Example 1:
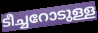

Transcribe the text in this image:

ടീച്ചറോടുള്ള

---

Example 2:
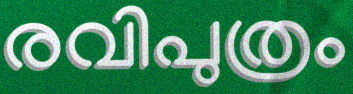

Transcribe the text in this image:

രവിപുത്രം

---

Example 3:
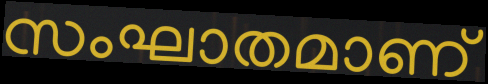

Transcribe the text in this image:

സംഘാതമാണ്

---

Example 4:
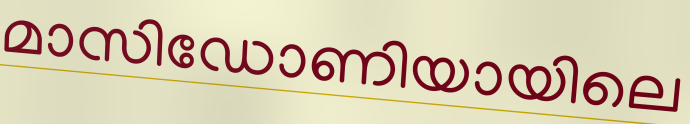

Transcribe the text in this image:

മാസിഡോണിയായിലെ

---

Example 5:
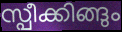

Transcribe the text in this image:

സ്പീക്കിങ്ങും